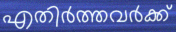
എതിർത്തവർക്ക്